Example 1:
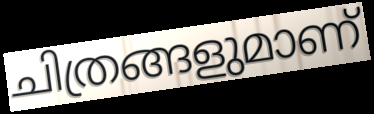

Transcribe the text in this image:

ചിത്രങ്ങളുമാണ്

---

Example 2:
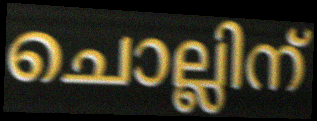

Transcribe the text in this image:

ചൊല്ലിന്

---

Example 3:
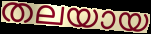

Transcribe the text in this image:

തലയായ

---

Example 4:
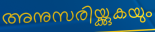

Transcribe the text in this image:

അനുസരിയ്ക്കുകയും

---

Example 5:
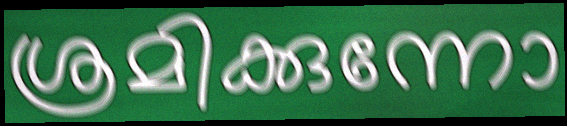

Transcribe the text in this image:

ശ്രമിക്കുന്നോ